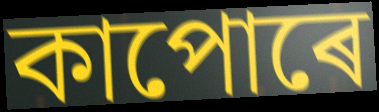
কাপোৰে